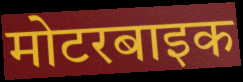
मोटरबाइक